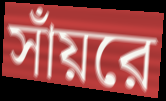
সাঁয়রে